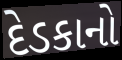
દેડકાનો